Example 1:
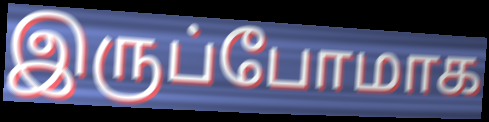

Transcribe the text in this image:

இருப்போமாக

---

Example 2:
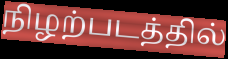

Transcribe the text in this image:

நிழற்படத்தில்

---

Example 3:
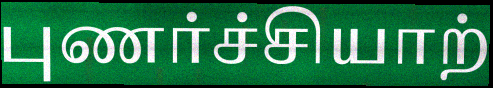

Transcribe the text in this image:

புணர்ச்சியாற்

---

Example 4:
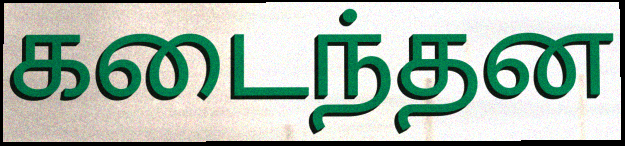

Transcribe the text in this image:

கடைந்தன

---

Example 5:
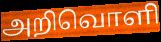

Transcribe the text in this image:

அறிவொளி